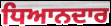
ਧਿਆਨਦਾਰ